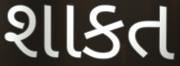
શાકત